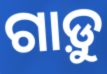
ଗାଡ଼ୁ